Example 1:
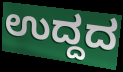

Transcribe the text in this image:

ಉದ್ದದ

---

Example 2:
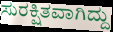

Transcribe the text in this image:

ಸುರಕ್ಷಿತವಾಗಿದ್ದು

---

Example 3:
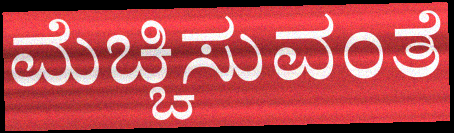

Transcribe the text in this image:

ಮೆಚ್ಚಿಸುವಂತೆ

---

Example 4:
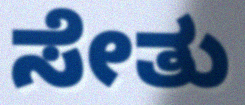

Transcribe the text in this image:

ಸೇತು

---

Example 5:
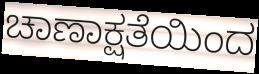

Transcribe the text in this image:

ಚಾಣಾಕ್ಷತೆಯಿಂದ